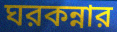
ঘরকন্নার